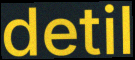
detil